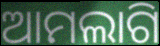
ଆମଲାଗି